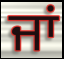
ਜਾਂ